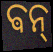
ଵନ୍